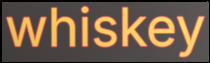
whiskey